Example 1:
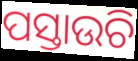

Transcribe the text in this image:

ପସ୍ତାଉଚି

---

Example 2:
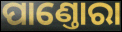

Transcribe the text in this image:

ପାଣ୍ତୋରା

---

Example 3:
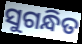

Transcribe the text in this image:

ସୁଗନ୍ଧିତ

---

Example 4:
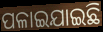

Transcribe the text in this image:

ପଳାଇଯାଇଛି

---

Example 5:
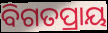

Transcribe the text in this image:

ବିଗତପ୍ରାୟ